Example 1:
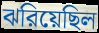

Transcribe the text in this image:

ঝরিয়েছিল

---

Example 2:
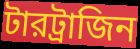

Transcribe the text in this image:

টারট্রাজিন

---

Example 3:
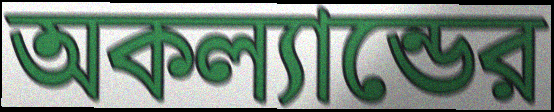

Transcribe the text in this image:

অকল্যান্ডের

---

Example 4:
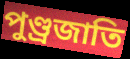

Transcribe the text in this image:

পুণ্ড্রজাতি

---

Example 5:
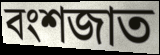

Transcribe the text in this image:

বংশজাত